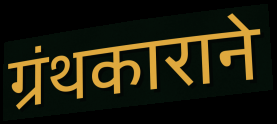
ग्रंथकाराने